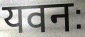
यवनः